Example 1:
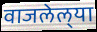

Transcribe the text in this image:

वाजलेल्या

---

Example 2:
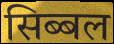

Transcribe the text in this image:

सिब्बल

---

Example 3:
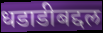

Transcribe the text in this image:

धडाडीबद्दल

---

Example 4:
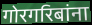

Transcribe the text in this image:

गोरगरिबांना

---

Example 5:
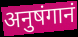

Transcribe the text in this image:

अनुषंगानं